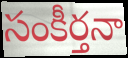
సంకీర్తనా